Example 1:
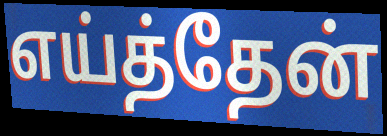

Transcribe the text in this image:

எய்த்தேன்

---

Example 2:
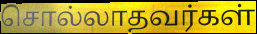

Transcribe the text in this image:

சொல்லாதவர்கள்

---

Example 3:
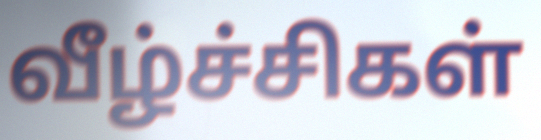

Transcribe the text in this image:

வீழ்ச்சிகள்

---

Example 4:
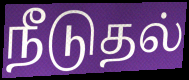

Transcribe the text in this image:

நீடுதல்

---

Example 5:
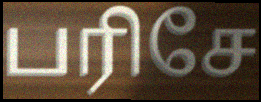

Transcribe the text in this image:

பரிசே